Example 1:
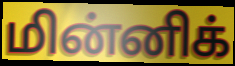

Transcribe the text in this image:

மின்னிக்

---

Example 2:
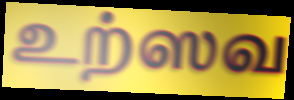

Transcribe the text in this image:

உற்ஸவ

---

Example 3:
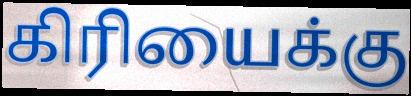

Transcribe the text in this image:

கிரியைக்கு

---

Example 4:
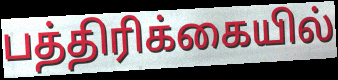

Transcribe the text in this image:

பத்திரிக்கையில்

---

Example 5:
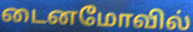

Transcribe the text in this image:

டைனமோவில்